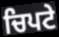
ਚਿਪਟੇ